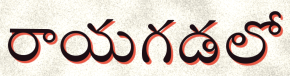
రాయగడలో